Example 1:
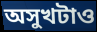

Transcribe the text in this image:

অসুখটাও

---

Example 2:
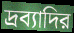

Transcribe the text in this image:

দ্রব্যাদির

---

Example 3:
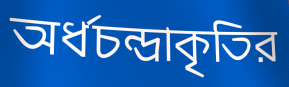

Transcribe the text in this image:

অর্ধচন্দ্রাকৃতির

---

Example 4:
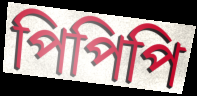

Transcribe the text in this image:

পিপিপি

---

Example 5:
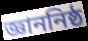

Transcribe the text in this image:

জ্ঞাননিষ্ঠ